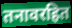
तनावरहित